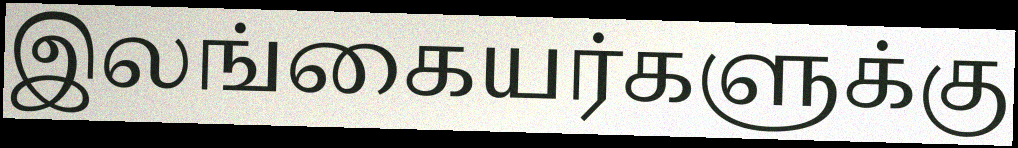
இலங்கையர்களுக்கு